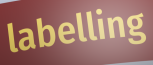
labelling